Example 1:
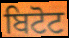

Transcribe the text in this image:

ਬਿਟੋਟ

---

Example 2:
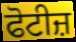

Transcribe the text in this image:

ਫੋਟੀਜ਼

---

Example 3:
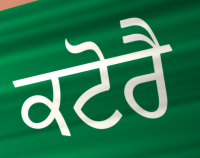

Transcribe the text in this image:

ਕਟੋਰੈ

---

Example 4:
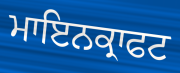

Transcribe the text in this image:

ਮਾਇਨਕ੍ਰਾਫਟ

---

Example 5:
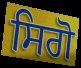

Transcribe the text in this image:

ਸਿਗੋ